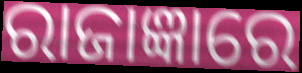
ରାଜାଜ୍ଞାରେ